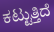
ಕಟ್ಟುತ್ತಿದೆ